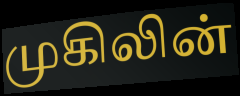
முகிலின்